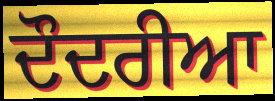
ਦੌਦਰੀਆ